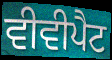
ਵੀਵੀਪੈਟ